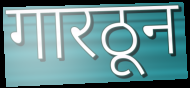
गारठून